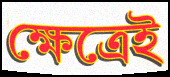
ক্ষেত্ৰেই